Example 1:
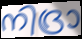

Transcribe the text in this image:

നിദ്രാ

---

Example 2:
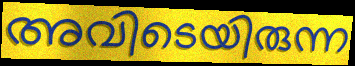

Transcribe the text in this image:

അവിടെയിരുന്ന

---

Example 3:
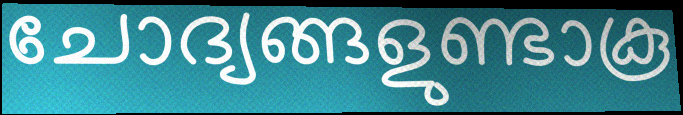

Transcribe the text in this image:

ചോദ്യങ്ങളുണ്ടാകൂ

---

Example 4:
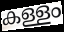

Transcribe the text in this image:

കള്ളം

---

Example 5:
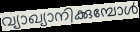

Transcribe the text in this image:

വ്യാഖ്യാനിക്കുമ്പോൾ